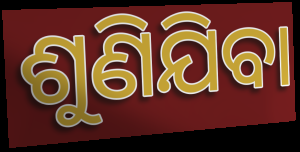
ଶୁଣିଯିବା